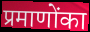
प्रमाणोंका